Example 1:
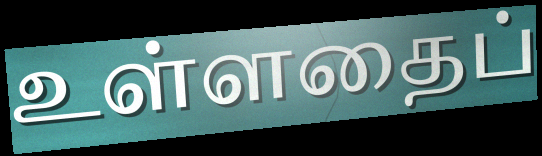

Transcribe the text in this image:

உள்ளதைப்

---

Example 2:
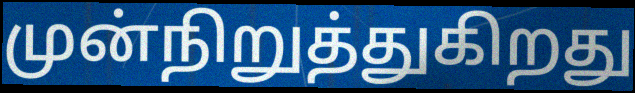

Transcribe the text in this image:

முன்நிறுத்துகிறது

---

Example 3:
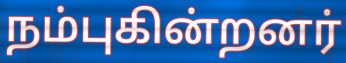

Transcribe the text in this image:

நம்புகின்றனர்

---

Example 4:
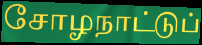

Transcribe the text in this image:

சோழநாட்டுப்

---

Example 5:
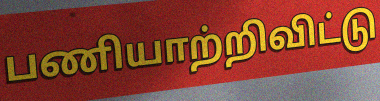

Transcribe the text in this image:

பணியாற்றிவிட்டு